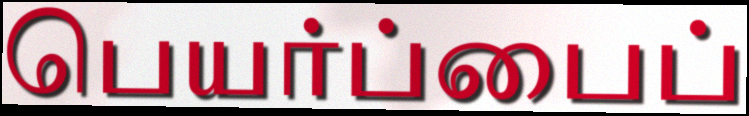
பெயர்ப்பைப்